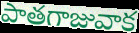
పాతగాజువాక